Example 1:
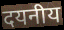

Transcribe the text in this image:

दयनीय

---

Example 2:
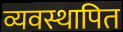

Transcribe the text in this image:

व्यवस्थापित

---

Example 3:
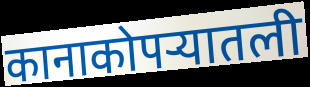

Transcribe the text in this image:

कानाकोपऱ्यातली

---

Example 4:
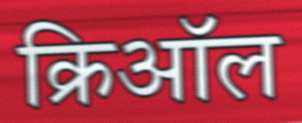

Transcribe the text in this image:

क्रिऑल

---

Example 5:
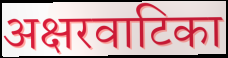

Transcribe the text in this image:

अक्षरवाटिका